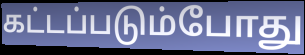
கட்டப்படும்போது